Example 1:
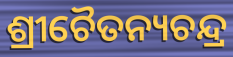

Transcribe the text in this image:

ଶ୍ରୀଚୈତନ୍ୟଚନ୍ଦ୍ର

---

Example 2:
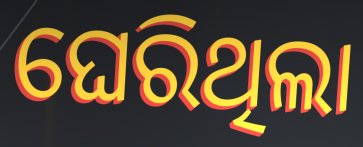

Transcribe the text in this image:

ଘେରିଥିଲା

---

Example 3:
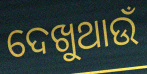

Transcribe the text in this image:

ଦେଖୁଥାଉଁ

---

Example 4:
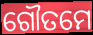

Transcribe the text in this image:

ଗୌତମେ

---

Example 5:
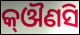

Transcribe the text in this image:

କ୍ଔଣସି